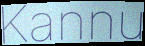
Kannu